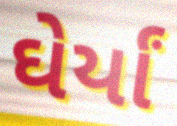
ઘેર્યાં